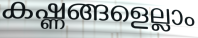
കഷ്ണങ്ങളെല്ലാം